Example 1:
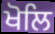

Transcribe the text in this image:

ਖੋਲਿ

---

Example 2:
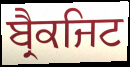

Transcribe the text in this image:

ਬ੍ਰੈਕਜਿਟ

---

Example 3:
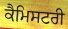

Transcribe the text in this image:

ਕੈਮਿਸਟਰੀ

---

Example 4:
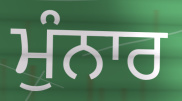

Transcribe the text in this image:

ਮੁੰਨਾਰ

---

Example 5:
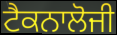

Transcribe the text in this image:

ਟੈਕਨਾਲੋਜੀ